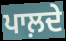
ਪਾਲ਼ਦੇ